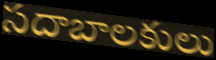
సదాబాలకులు